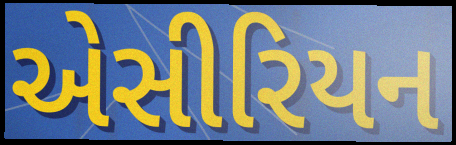
એસીરિયન